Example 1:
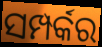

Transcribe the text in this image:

ସମ୍ପର୍କର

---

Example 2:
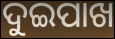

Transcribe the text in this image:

ଦୁଇପାଖ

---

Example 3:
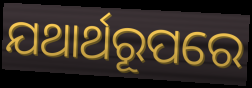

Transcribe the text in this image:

ଯଥାର୍ଥରୂପରେ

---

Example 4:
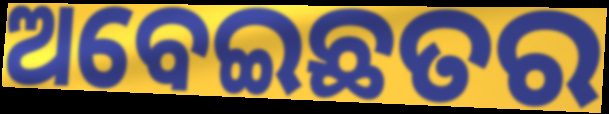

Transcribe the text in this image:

ଅବେଇଛତର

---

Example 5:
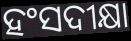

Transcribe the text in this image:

ହଂସଦୀକ୍ଷା